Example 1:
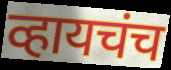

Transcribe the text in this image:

व्हायचंच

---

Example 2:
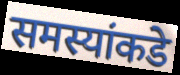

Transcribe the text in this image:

समस्यांकडे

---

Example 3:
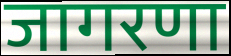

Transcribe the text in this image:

जागरणा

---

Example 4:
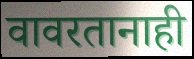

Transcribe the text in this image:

वावरतानाही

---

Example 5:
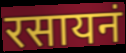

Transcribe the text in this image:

रसायनं